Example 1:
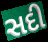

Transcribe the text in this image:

સદી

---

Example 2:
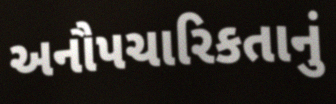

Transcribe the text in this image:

અનૌપચારિકતાનું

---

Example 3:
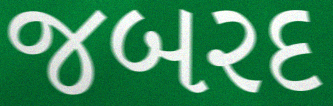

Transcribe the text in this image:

જબરદ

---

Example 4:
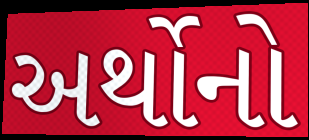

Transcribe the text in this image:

અર્થોનો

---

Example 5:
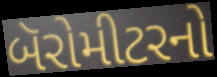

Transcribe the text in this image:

બૅરોમીટરનો